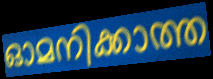
ഓമനിക്കാത്ത